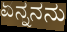
ಏನ್ನನನು